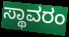
ಸ್ಥಾವರಂ